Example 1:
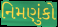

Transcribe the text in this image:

નિમણુંકો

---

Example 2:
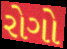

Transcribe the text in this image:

રોગો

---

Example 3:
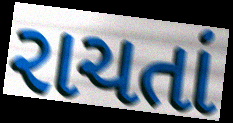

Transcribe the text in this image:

રાચતાં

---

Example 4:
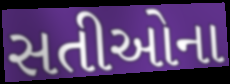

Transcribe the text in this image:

સતીઓના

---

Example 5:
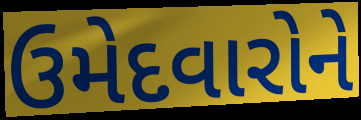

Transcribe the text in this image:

ઉમેદવારોને